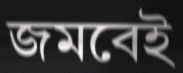
জমবেই